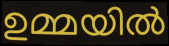
ഉമ്മയിൽ